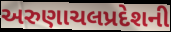
અરુણાચલપ્રદેશની